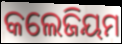
କଲେଜିୟମ